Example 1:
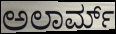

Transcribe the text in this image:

ಅಲಾರ್ಮ್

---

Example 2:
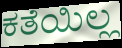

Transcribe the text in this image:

ಕತೆಯಿಲ್ಲ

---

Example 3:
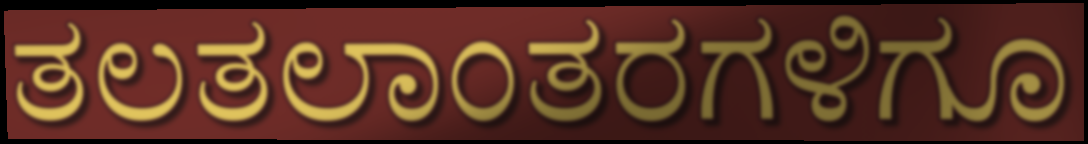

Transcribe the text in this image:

ತಲತಲಾಂತರಗಳಿಗೂ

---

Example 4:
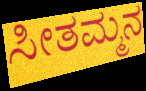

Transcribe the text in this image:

ಸೀತಮ್ಮನ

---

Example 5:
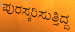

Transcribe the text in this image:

ಪುರಸ್ಕರಿಸುತ್ತಿದ್ದ